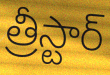
త్రీస్టార్